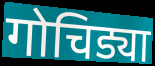
गोचिड्या